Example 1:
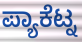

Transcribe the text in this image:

ಪ್ಯಾಕೆಟ್ನ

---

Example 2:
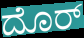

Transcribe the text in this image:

ದೊರ್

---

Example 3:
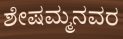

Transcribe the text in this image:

ಶೇಷಮ್ಮನವರ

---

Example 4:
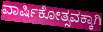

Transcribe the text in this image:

ವಾರ್ಷಿಕೋತ್ಸವಕ್ಕಾಗಿ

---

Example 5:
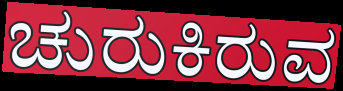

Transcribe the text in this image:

ಚುರುಕಿರುವ